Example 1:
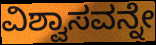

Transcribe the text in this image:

ವಿಶ್ವಾಸವನ್ನೇ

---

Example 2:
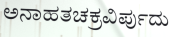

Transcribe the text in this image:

ಅನಾಹತಚಕ್ರವಿರ್ಪುದು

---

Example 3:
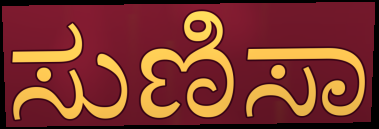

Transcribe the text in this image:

ಸುಣಿಸಾ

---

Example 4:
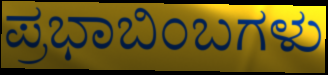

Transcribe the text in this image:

ಪ್ರಭಾಬಿಂಬಗಳು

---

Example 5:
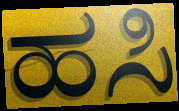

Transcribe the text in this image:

ಹಸಿ